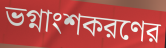
ভগ্নাংশকরণের